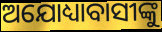
ଅଯୋଧ୍ୟାବାସୀଙ୍କୁ